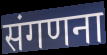
संगणना